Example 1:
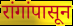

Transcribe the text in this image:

रांगांपासून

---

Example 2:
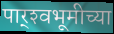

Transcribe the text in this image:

पार्श्वभूमीच्या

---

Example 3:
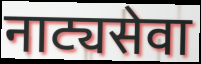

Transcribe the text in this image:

नाट्यसेवा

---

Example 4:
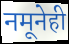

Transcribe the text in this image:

नमूनेही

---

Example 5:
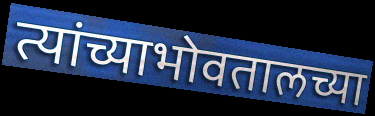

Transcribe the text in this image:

त्यांच्याभोवतालच्या